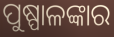
ପୁଷ୍ପାଳଙ୍କାର